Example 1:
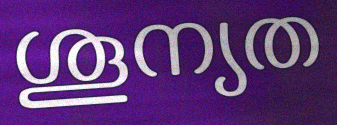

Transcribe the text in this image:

ശൂന്യത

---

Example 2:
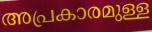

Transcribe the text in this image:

അപ്രകാരമുള്ള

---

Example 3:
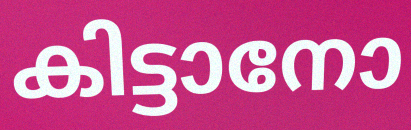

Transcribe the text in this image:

കിട്ടാനോ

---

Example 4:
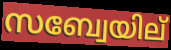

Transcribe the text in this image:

സബ്വേയില്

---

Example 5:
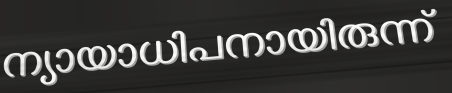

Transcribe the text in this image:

ന്യായാധിപനായിരുന്ന്